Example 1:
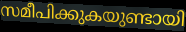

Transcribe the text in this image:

സമീപിക്കുകയുണ്ടായി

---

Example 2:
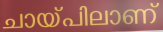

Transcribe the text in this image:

ചായ്പിലാണ്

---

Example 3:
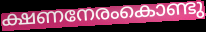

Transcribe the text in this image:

ക്ഷണനേരംകൊണ്ടു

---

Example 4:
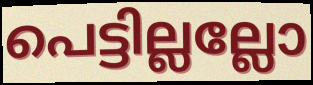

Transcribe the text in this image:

പെട്ടില്ലല്ലോ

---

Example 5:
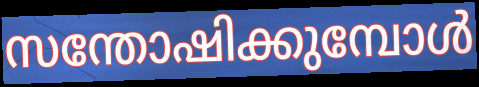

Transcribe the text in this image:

സന്തോഷിക്കുമ്പോൾ